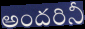
అందరినీ